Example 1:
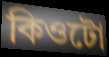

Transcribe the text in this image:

কিওটো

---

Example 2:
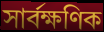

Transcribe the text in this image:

সার্বক্ষণিক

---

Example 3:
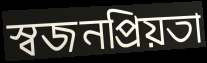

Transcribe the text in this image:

স্বজনপ্রিয়তা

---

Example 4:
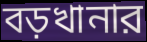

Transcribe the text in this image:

বড়খানার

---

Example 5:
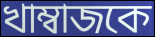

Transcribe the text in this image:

খাম্বাজকে